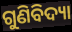
ଗୁଣିବିଦ୍ୟା